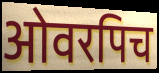
ओवरपिच